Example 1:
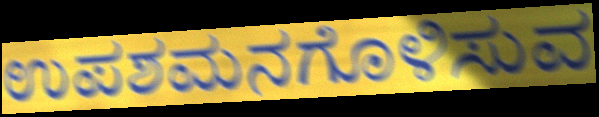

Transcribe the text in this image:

ಉಪಶಮನಗೊಳಿಸುವ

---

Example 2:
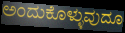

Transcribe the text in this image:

ಅಂದುಕೊಳ್ಳುವುದೂ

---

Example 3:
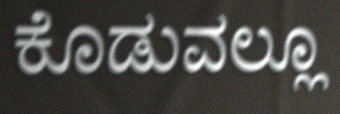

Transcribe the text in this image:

ಕೊಡುವಲ್ಲೂ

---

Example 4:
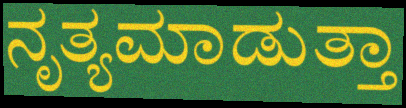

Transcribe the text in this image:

ನೃತ್ಯಮಾಡುತ್ತಾ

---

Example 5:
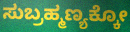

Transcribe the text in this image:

ಸುಬ್ರಹ್ಮಣ್ಯಕ್ಕೋ